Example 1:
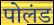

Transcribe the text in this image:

पोलंड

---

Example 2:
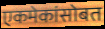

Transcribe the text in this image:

एकमेकांसोबत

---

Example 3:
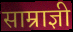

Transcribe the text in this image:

साम्राज्ञी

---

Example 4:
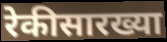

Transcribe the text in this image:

रेकीसारख्या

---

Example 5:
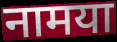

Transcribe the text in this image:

नामया